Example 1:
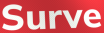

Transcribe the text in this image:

Surve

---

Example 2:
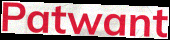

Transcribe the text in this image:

Patwant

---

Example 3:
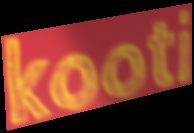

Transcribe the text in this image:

kooti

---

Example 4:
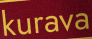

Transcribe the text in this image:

kurava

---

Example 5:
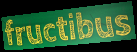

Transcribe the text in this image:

fructibus